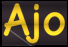
Ajo